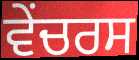
ਵੇਂਚਰਸ